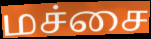
மச்சை